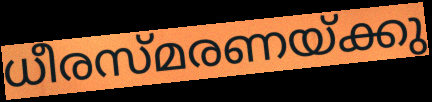
ധീരസ്മരണയ്ക്കു